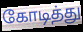
கோடித்து